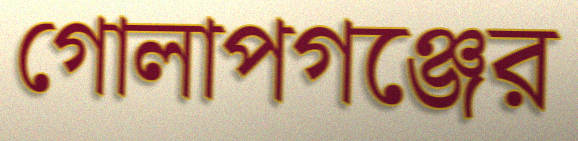
গোলাপগঞ্জের